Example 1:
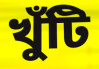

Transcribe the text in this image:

খুঁটি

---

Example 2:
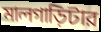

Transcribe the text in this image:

মালগাড়িটার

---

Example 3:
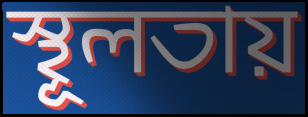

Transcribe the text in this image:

স্থূলতায়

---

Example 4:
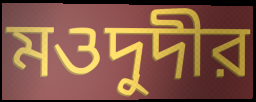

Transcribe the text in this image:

মওদুদীর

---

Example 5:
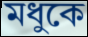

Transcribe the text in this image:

মধুকে